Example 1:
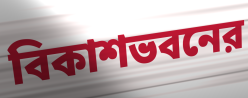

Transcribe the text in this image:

বিকাশভবনের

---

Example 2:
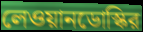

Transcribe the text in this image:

লেওয়ানডোস্কির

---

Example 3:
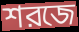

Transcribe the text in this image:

শরজে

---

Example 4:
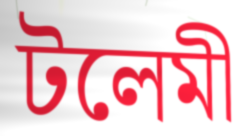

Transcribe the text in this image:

টলেমী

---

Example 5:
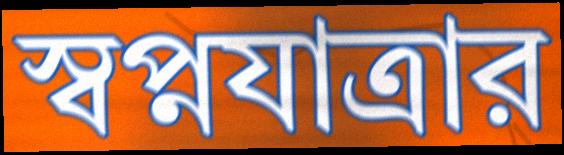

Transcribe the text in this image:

স্বপ্নযাত্রার